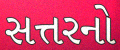
સત્તરનો